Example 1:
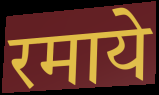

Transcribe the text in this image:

रमाये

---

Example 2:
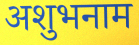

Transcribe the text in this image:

अशुभनाम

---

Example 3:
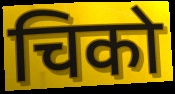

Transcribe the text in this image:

चिको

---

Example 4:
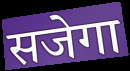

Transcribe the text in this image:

सजेगा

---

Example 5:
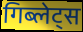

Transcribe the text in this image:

गिब्लेट्स